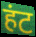
हंट